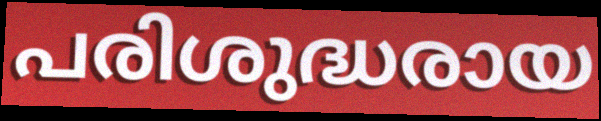
പരിശുദ്ധരായ